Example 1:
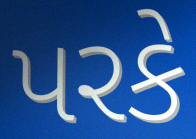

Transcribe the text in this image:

પરકે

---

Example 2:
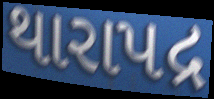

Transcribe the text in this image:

થારાપદ્ર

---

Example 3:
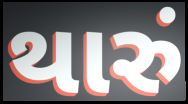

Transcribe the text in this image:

થારું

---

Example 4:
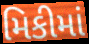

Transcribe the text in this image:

મિકીમાં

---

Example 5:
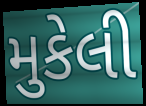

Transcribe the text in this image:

મુકેલી